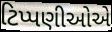
ટિપ્પણીઓએ